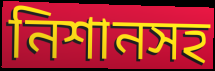
নিশানসহ